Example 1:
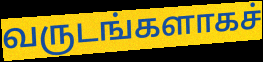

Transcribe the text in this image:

வருடங்களாகச்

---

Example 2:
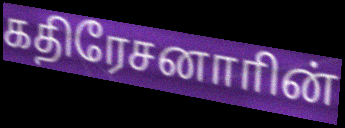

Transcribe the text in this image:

கதிரேசனாரின்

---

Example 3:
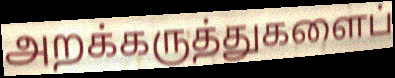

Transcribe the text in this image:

அறக்கருத்துகளைப்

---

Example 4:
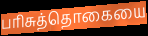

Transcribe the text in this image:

பரிசுத்தொகையை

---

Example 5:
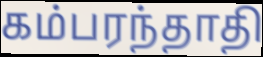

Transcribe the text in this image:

கம்பரந்தாதி